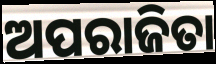
ଅପରାଜିତା